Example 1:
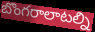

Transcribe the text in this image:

బొంగరాలాటల్ని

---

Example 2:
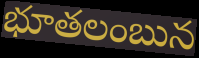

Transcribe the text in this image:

భూతలంబున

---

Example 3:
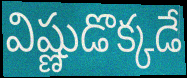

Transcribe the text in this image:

విష్ణుడొక్కడే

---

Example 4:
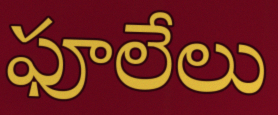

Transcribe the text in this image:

ఫూలేలు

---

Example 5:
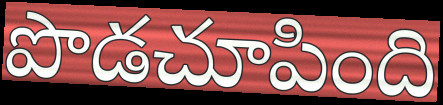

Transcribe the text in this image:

పొడచూపింది